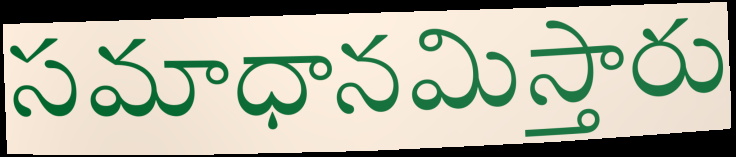
సమాధానమిస్తారు